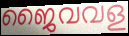
ജൈവവള